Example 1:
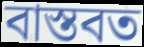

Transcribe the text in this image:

বাস্তবত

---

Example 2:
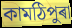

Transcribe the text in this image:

কামঠিপুৰা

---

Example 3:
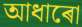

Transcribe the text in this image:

আধাৰো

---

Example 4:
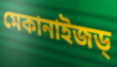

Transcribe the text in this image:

মেকানাইজড্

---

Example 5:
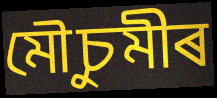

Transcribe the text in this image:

মৌচুমীৰ